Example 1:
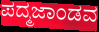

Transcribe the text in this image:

ಪದ್ಮಜಾಂಡವ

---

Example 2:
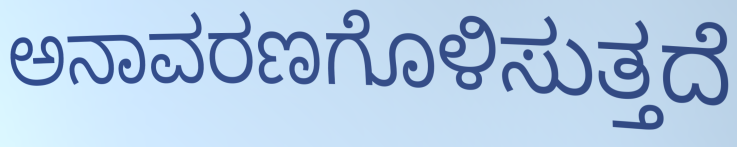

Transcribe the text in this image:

ಅನಾವರಣಗೊಳಿಸುತ್ತದೆ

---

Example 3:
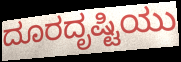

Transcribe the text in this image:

ದೂರದೃಷ್ಟಿಯು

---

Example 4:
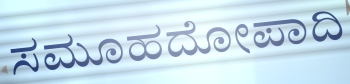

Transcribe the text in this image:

ಸಮೂಹದೋಪಾದಿ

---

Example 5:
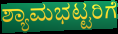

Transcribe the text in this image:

ಶ್ಯಾಮಭಟ್ಟರಿಗೆ